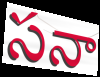
సనా